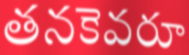
తనకెవరూ